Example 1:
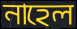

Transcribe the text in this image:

নাহেল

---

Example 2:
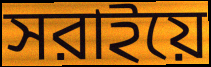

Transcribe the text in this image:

সরাইয়ে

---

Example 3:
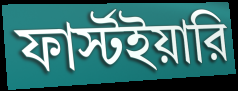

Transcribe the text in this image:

ফার্স্টইয়ারি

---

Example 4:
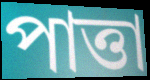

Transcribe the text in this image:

পাত্তা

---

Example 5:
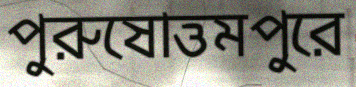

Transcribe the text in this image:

পুরুষোত্তমপুরে